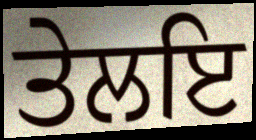
ਤੇਲਇ